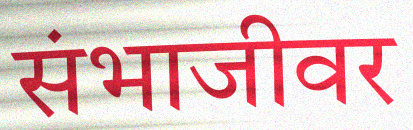
संभाजीवर